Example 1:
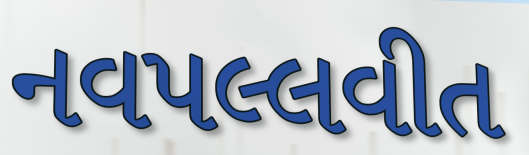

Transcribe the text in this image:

નવપલ્લવીત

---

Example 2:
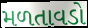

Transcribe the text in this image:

મળતાવડો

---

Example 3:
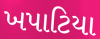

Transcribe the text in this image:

ખપાટિયા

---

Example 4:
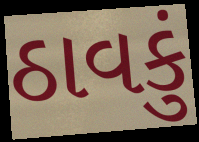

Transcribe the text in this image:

ઠાવકું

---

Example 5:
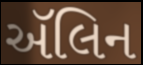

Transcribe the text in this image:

ઍલિન